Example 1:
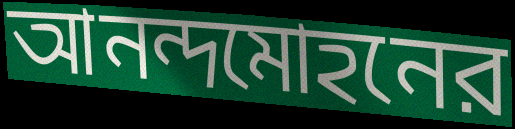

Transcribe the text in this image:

আনন্দমোহনের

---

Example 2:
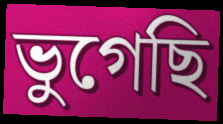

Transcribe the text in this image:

ভুগেছি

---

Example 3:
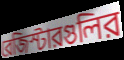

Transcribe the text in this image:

রেজিস্টারগুলির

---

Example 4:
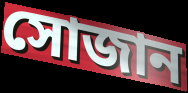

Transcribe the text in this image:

সোজান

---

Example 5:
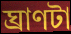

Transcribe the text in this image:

ঘ্রাণটা